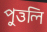
পুত্তলি